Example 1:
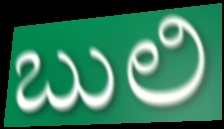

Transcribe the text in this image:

ಬುಲಿ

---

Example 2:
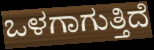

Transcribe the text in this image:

ಒಳಗಾಗುತ್ತಿದೆ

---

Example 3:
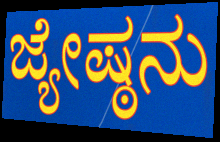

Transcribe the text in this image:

ಜ್ಯೇಷ್ಠನು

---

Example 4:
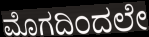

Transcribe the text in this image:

ಮೊಗದಿಂದಲೇ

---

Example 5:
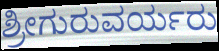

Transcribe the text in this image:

ಶ್ರೀಗುರುವರ್ಯರು